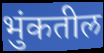
भुंकतील